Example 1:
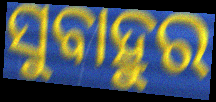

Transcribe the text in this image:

ସୁବାହୁର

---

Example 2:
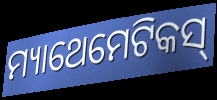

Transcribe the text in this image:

ମ୍ୟାଥେମେଟିକସ୍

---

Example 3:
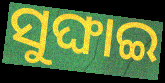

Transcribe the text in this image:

ସୁଙ୍ଘାଇ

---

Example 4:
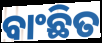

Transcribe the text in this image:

ବାଂଛିତ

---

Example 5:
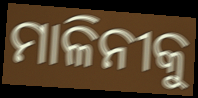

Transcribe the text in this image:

ମାଳିନୀକୁ